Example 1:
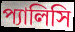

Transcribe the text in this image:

প্যালিসি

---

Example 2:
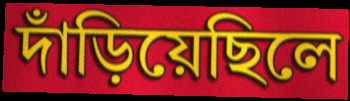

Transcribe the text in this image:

দাঁড়িয়েছিলে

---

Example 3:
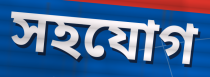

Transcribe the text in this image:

সহযোগ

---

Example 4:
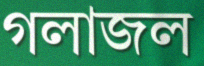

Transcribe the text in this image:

গলাজল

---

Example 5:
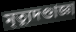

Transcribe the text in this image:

মৃত্যুদণ্ডাজ্ঞা